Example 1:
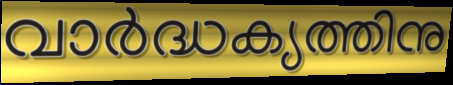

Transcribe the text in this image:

വാർദ്ധക്യത്തിനു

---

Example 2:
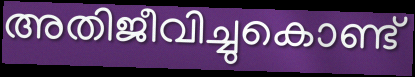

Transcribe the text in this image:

അതിജീവിച്ചുകൊണ്ട്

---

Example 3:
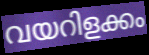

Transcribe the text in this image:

വയറിളക്കം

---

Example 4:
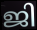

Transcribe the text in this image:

ജി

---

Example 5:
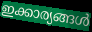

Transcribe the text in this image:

ഇക്കാര്യങ്ങൾ